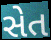
સેત